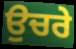
ਉਚਰੇ